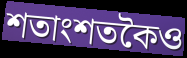
শতাংশতকৈও